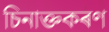
চিনাক্তকৰণ